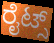
ರೈಟ್ಸ್